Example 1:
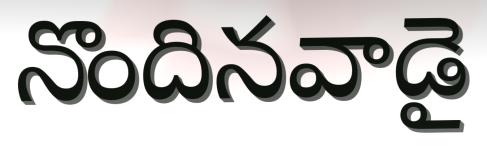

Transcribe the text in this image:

నొందినవాడై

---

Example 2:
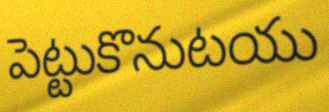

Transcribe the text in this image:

పెట్టుకొనుటయు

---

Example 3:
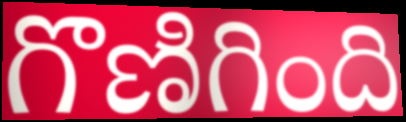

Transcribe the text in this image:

గొణిగింది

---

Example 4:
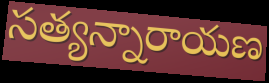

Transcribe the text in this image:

సత్యన్నారాయణ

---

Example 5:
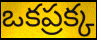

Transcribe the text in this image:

ఒకప్రక్క